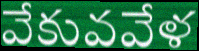
వేకువవేళ